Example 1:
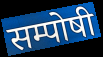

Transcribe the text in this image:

सम्पोषी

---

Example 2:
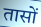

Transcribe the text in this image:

तासों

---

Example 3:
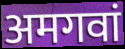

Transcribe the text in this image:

अमगवां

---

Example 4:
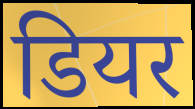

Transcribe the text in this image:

डियर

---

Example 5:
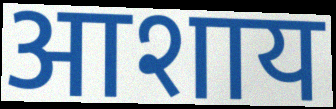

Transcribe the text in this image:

आशाय